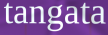
tangata